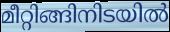
മീറ്റിങ്ങിനിടയിൽ